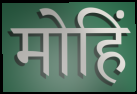
मोहिं